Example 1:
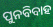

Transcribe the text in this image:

ପୁନବିବାହ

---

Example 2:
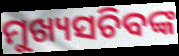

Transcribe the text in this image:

ମୁଖ୍ୟସଚିବଙ୍କ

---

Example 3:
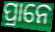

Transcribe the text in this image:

ପ୍ରାନେ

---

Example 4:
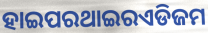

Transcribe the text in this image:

ହାଇପରଥାଇରଏଡିଜମ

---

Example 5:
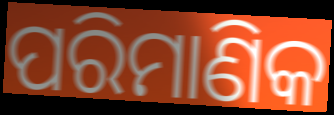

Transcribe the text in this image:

ପରିମାଣିକ